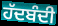
ਹੱਦਬੰਦੀ